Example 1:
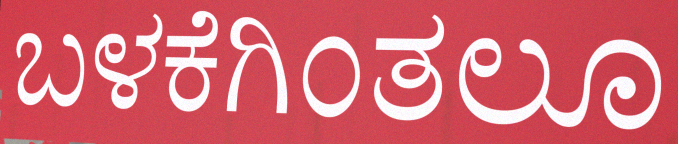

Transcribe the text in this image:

ಬಳಕೆಗಿಂತಲೂ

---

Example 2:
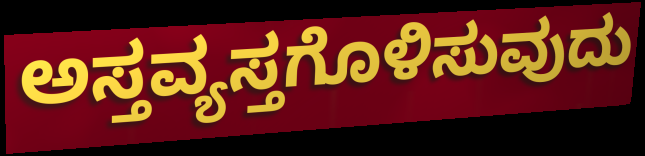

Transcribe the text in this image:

ಅಸ್ತವ್ಯಸ್ತಗೊಳಿಸುವುದು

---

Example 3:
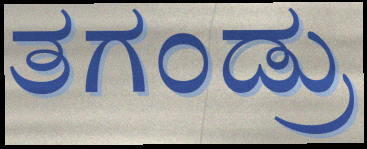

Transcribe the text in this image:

ತಗಂಡ್ರು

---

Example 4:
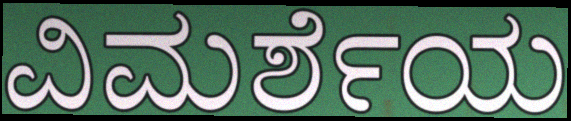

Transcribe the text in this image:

ವಿಮರ್ಶೆಯ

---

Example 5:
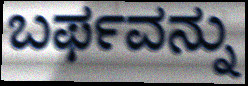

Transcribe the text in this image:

ಬರ್ಫವನ್ನು